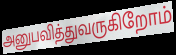
அனுபவித்துவருகிறோம்